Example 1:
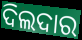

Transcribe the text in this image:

ଦିଲଦାର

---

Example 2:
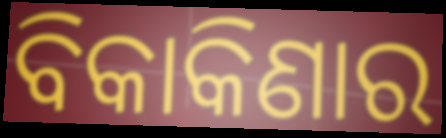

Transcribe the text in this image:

ବିକାକିଣାର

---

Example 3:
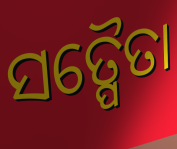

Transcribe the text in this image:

ସତ୍ପୈତା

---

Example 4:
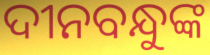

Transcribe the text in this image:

ଦୀନବନ୍ଧୁଙ୍କ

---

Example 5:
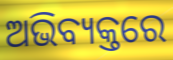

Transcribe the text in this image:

ଅଭିବ୍ୟକ୍ତରେ